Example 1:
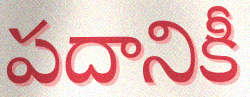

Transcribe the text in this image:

పదానికీ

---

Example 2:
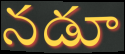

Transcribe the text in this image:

నడూ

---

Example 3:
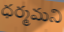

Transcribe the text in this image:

ధర్మమని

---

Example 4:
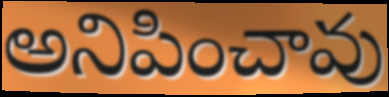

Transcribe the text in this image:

అనిపించావు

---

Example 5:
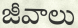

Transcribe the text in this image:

జీవాలు